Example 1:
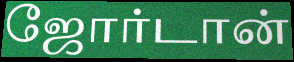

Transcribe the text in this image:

ஜோர்டான்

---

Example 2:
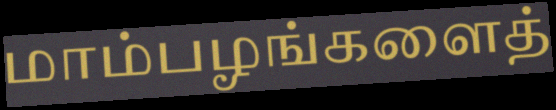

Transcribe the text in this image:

மாம்பழங்களைத்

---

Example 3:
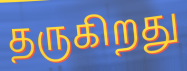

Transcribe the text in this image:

தருகிறது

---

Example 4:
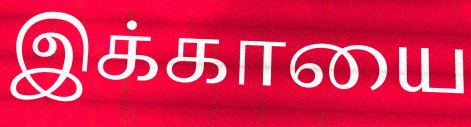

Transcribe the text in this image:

இக்காயை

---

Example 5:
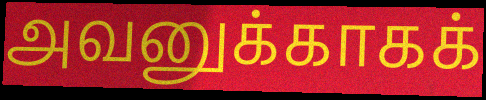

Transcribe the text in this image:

அவனுக்காகக்